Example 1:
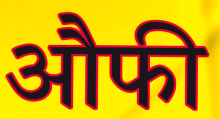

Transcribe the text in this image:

औफी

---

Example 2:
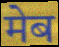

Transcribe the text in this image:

मेब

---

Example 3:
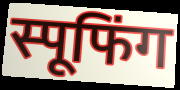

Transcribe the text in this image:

स्पूफिंग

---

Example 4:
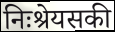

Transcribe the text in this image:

निःश्रेयसकी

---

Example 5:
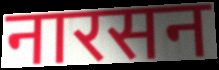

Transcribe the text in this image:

नारसन